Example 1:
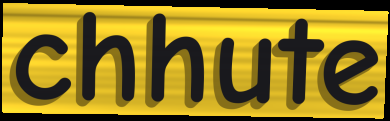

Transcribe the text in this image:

chhute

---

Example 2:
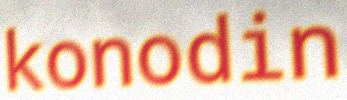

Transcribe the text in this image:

konodin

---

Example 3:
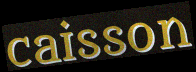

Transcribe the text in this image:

caisson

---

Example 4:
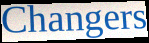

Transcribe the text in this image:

Changers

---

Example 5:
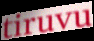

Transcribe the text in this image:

tiruvu